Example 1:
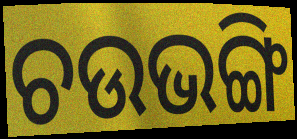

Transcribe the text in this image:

ଚଉଭଙ୍ଗି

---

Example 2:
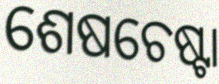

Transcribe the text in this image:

ଶେଷଚେଷ୍ଟା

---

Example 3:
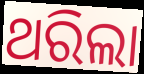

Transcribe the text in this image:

ଥରିଲା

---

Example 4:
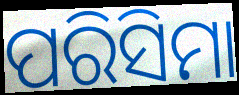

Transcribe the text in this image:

ପରିସିମା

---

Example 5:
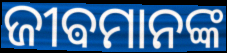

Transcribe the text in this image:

ଜୀଵମାନଙ୍କ